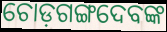
ଚୋଡ଼ଗଙ୍ଗଦେବଙ୍କ